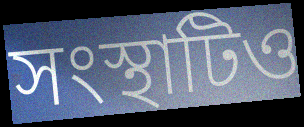
সংস্থাটিও